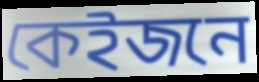
কেইজনে